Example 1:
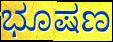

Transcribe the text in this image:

ಭೂಷಣ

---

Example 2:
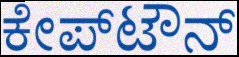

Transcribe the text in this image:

ಕೇಪ್‌ಟೌನ್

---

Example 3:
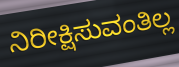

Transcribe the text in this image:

ನಿರೀಕ್ಷಿಸುವಂತಿಲ್ಲ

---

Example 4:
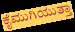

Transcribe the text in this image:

ಕೈಮುಗಿಯುತ್ತಾ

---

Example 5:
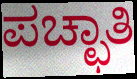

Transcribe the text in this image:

ಪಚ್ಛಾತಿ